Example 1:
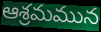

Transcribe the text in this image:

ఆశ్రమమున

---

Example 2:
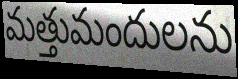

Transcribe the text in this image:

మత్తుమందులను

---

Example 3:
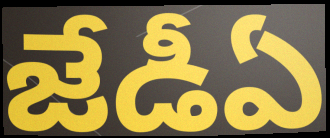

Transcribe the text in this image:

జేడీఏ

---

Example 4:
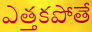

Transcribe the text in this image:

ఎత్తకపోతే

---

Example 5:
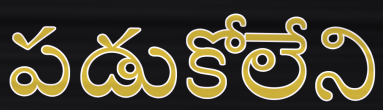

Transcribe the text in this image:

పడుకోలేని